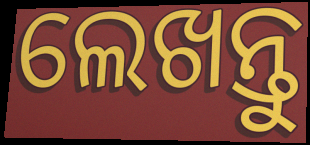
ଲେଖନ୍ତୁ